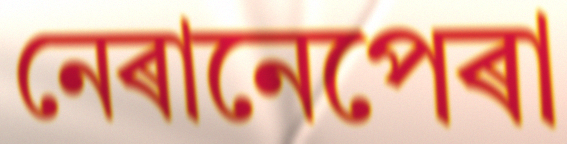
নেৰানেপেৰা